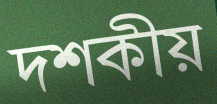
দশকীয়